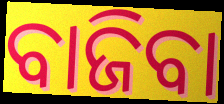
ବାଜିବା